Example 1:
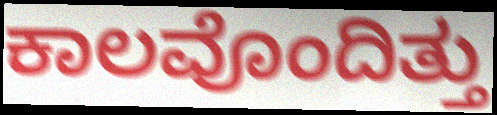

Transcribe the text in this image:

ಕಾಲವೊಂದಿತ್ತು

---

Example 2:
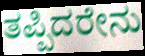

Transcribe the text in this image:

ತಪ್ಪಿದರೇನು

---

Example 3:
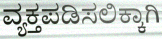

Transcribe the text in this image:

ವ್ಯಕ್ತಪಡಿಸಲಿಕ್ಕಾಗಿ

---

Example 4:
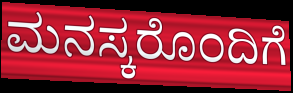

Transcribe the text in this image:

ಮನಸ್ಕರೊಂದಿಗೆ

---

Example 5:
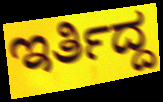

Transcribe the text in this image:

ಇರ್ತಿದ್ದ